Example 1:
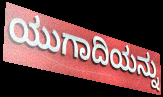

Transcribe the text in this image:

ಯುಗಾದಿಯನ್ನು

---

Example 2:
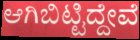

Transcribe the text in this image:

ಆಗಿಬಿಟ್ಟಿದ್ದೇವೆ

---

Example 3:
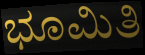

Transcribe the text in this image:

ಭೂಮಿತಿ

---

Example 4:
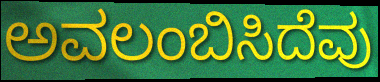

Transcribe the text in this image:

ಅವಲಂಬಿಸಿದೆವು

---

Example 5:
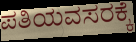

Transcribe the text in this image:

ಪತಿಯವಸರಕ್ಕೆ